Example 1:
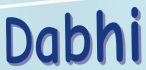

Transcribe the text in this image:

Dabhi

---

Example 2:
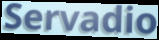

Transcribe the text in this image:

Servadio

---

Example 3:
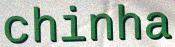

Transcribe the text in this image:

chinha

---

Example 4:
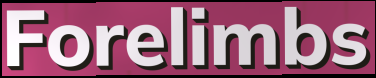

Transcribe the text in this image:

Forelimbs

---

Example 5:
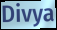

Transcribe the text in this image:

Divya